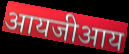
आयजीआय